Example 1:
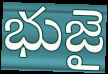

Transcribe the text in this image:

భుజై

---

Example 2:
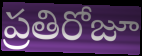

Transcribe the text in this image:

ప్రతిరోజూ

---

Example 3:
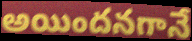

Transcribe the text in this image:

అయిందనగానే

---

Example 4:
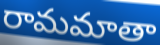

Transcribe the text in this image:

రామమాతా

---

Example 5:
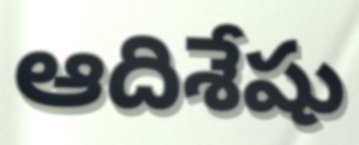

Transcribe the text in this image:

ఆదిశేషు